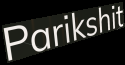
Parikshit